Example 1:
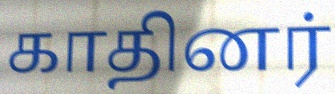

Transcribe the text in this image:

காதினர்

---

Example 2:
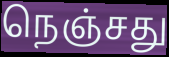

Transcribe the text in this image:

நெஞ்சது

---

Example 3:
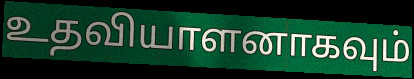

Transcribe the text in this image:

உதவியாளனாகவும்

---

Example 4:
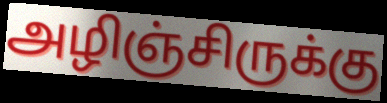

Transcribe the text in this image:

அழிஞ்சிருக்கு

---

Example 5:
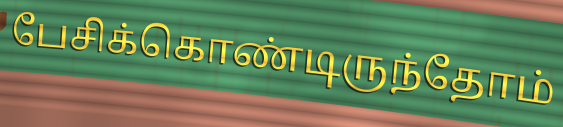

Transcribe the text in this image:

பேசிக்கொண்டிருந்தோம்